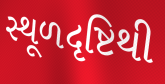
સ્થૂળદૃષ્ટિથી